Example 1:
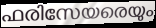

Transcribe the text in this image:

ഫരിസേയരെയും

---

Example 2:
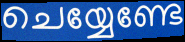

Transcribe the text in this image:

ചെയ്യേണ്ടേ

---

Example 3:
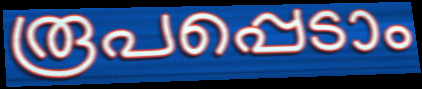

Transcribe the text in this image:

രൂപപ്പെടാം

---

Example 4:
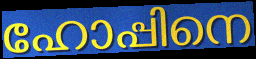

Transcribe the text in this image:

ഹോപ്പിനെ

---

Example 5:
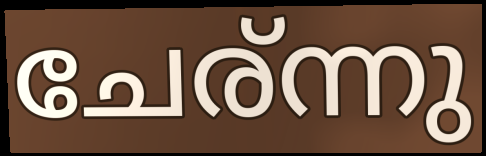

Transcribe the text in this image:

ചേര്ന്നു